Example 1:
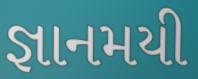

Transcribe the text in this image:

જ્ઞાનમયી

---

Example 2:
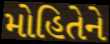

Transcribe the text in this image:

મોહિતેને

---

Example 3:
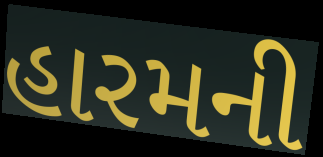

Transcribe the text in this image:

હારમની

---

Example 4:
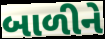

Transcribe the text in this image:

બાળીને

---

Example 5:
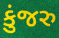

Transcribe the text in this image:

કુંજરુ